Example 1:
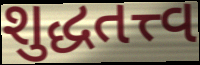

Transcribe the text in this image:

શુદ્ધતત્ત્વ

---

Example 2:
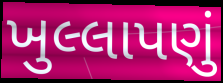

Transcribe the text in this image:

ખુલ્લાપણું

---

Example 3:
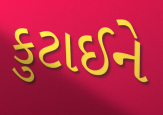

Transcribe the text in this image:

કુટાઈને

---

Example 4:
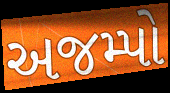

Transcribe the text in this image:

અજમ્પો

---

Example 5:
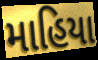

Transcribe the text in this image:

માહિયા